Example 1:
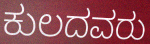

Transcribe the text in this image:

ಕುಲದವರು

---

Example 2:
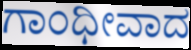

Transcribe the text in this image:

ಗಾಂಧೀವಾದ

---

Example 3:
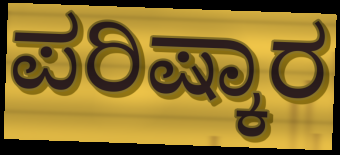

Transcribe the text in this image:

ಪರಿಷ್ಕಾರ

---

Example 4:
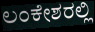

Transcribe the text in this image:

ಲಂಕೇಶರಲ್ಲಿ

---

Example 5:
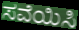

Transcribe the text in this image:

ಸವೆಯಿಸಿ